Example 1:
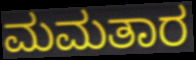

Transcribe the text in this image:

ಮಮತಾರ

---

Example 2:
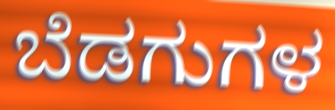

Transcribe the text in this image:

ಬೆಡಗುಗಳ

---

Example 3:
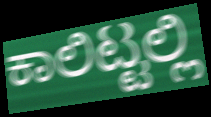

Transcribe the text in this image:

ಕಾಲಿಟ್ಟಲ್ಲಿ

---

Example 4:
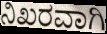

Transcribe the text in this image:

ನಿಖರವಾಗಿ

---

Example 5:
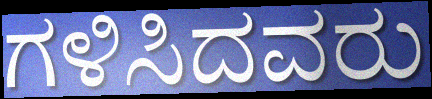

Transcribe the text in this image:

ಗಳಿಸಿದವರು